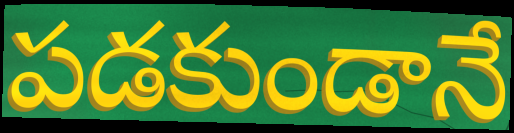
పడకుండానే